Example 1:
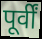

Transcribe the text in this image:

पूर्वीं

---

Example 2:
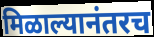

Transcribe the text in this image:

मिळाल्यानंतरच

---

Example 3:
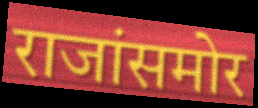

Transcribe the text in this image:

राजांसमोर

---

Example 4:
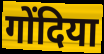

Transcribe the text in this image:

गोंदिया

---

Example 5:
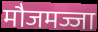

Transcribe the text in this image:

मौजमज्जा